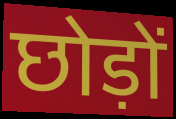
छोड़ों